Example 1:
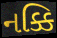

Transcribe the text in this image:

નક્કિ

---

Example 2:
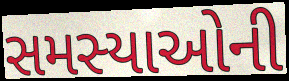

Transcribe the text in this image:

સમસ્યાઓની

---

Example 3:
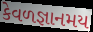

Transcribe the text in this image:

કેવળજ્ઞાનમય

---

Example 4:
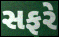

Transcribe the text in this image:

સફરે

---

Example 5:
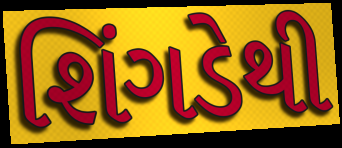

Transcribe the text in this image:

શિંગડેથી